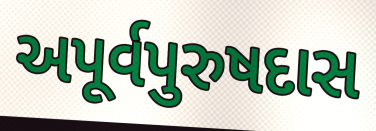
અપૂર્વપુરુષદાસ